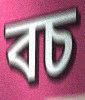
বচ